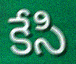
కేసి